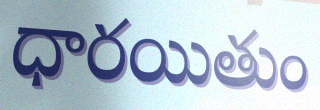
ధారయితుం